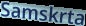
Samskrta